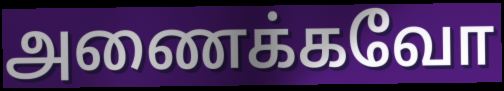
அணைக்கவோ